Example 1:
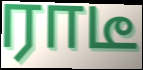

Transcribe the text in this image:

ராடீ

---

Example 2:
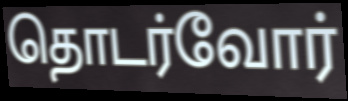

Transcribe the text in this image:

தொடர்வோர்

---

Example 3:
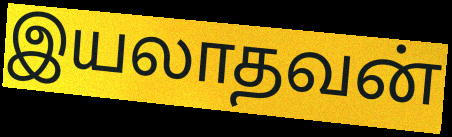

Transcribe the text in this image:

இயலாதவன்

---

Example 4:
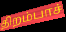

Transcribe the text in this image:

திறம்பாச்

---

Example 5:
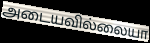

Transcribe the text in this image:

அடையவில்லையா